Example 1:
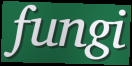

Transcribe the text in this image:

fungi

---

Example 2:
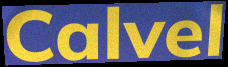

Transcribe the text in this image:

Calvel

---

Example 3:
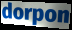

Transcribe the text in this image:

dorpon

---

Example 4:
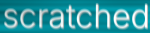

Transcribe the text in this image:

scratched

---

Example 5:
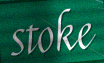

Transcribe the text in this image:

stoke